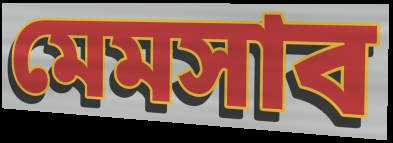
মেমসাব